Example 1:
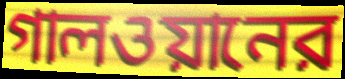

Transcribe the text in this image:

গালওয়ানের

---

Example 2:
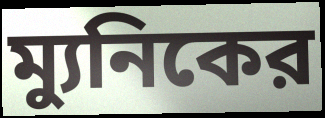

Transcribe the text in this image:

ম্যুনিকের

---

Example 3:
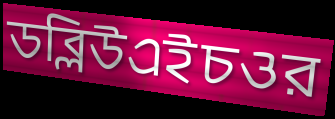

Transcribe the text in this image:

ডব্লিউএইচওর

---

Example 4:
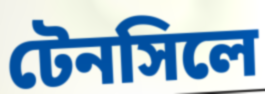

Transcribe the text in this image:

টেনসিলে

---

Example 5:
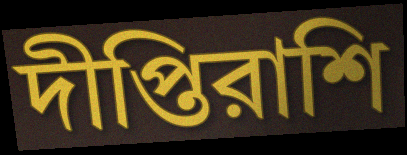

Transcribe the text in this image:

দীপ্তিরাশি